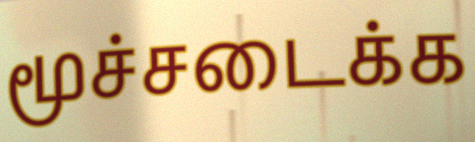
மூச்சடைக்க